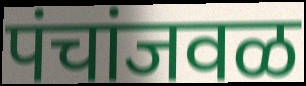
पंचांजवळ